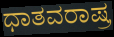
ಧಾತವರಾಷ್ರ